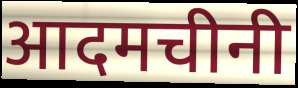
आदमचीनी